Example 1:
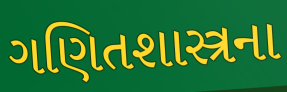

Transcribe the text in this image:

ગણિતશાસ્ત્રના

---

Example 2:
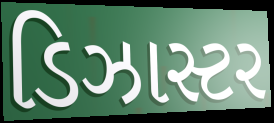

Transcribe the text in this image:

ડિઝાસ્ટર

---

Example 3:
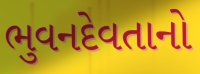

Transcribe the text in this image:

ભુવનદેવતાનો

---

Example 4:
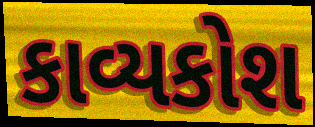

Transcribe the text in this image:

કાવ્યકોશ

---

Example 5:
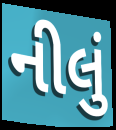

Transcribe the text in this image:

નીલું